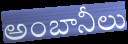
అంబానీలు